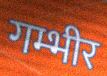
गम्भीर